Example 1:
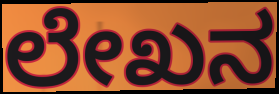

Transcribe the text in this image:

ಲೇಖನ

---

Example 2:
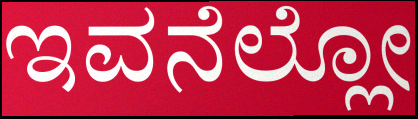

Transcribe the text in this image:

ಇವನೆಲ್ಲೋ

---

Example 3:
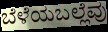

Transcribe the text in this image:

ಬೆಳೆಯಬಲ್ಲೆವು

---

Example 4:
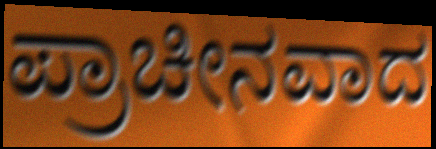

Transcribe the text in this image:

ಪ್ರಾಚೀನವಾದ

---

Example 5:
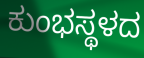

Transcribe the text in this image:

ಕುಂಭಸ್ಥಳದ